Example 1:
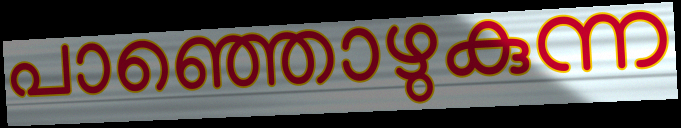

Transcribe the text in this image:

പാഞ്ഞൊഴുകുന്ന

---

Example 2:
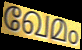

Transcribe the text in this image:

ഖേമം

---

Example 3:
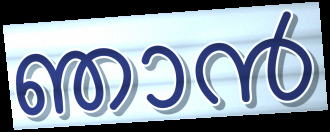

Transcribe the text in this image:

ഞാൻ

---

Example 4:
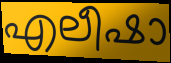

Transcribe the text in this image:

എലീഷാ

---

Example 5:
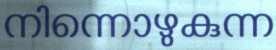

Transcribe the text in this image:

നിന്നൊഴുകുന്ന